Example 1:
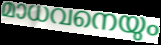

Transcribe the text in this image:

മാധവനെയും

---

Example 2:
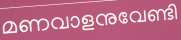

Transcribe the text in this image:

മണവാളനുവേണ്ടി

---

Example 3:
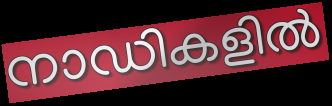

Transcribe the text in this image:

നാഡികളിൽ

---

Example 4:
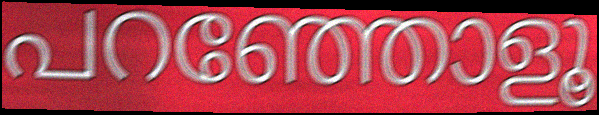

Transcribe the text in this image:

പറഞ്ഞോളൂ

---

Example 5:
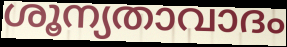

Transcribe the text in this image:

ശൂന്യതാവാദം